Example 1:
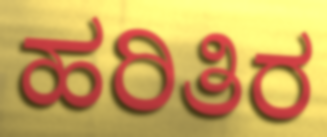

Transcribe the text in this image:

ಹರಿತಿರ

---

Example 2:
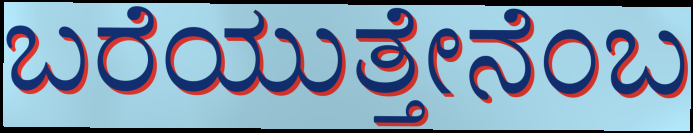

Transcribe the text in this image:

ಬರೆಯುತ್ತೇನೆಂಬ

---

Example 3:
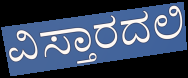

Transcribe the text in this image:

ವಿಸ್ತಾರದಲಿ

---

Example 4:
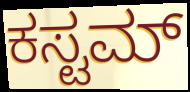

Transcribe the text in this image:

ಕಸ್ಟಮ್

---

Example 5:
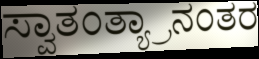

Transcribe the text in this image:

ಸ್ವಾತಂತ್ಯ್ರಾನಂತರ